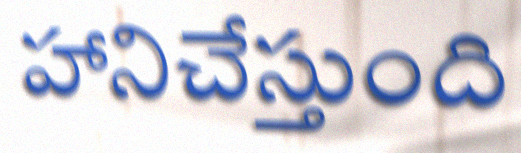
హానిచేస్తుంది